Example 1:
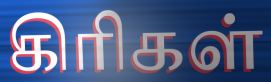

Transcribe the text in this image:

கிரிகள்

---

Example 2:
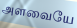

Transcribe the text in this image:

அளவையே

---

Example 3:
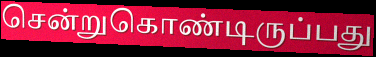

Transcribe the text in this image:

சென்றுகொண்டிருப்பது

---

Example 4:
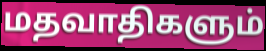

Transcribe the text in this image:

மதவாதிகளும்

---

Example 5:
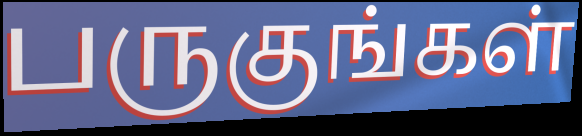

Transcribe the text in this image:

பருகுங்கள்